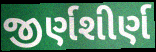
જીર્ણશીર્ણ